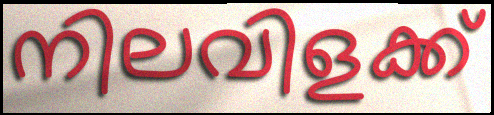
നിലവിളക്ക്